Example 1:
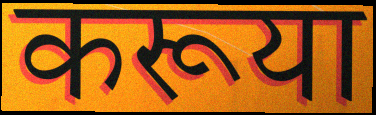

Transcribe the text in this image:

करूया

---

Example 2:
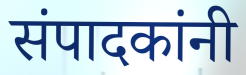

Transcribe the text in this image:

संपादकांनी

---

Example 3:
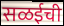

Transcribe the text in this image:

सळईची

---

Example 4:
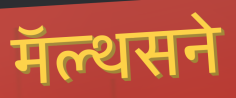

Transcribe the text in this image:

मॅल्थसने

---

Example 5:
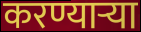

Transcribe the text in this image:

करण्यार्‍या